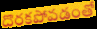
దొరకపోవడంతో